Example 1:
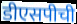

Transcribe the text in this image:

डीएसपीची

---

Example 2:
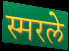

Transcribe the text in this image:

स्मरले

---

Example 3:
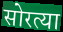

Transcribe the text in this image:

सोरत्या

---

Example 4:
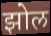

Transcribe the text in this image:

झोल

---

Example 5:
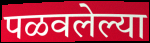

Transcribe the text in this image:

पळवलेल्या